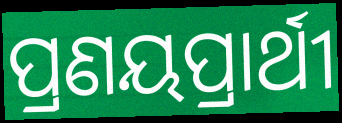
ପ୍ରଣୟପ୍ରାର୍ଥୀ